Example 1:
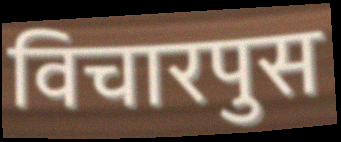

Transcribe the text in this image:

विचारपुस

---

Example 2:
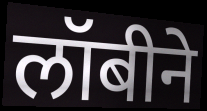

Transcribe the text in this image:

लॉबीने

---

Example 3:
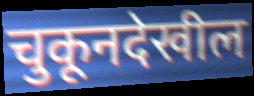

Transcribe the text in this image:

चुकूनदेखील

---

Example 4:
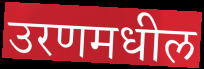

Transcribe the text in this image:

उरणमधील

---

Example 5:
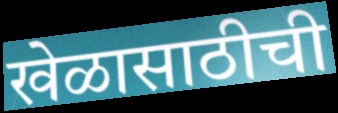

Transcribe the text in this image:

खेळासाठीची